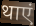
थाएं